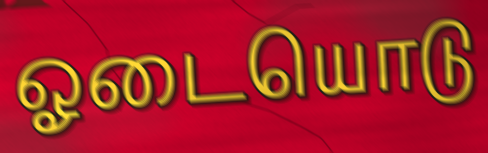
ஓடையொடு